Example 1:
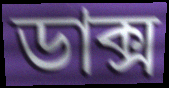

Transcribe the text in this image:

ডাক্স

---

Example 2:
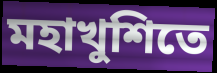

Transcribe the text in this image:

মহাখুশিতে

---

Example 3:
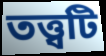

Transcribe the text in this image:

তত্ত্বটি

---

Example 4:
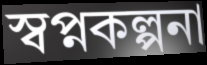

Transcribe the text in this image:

স্বপ্নকল্পনা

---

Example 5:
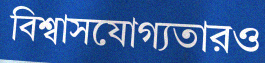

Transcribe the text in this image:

বিশ্বাসযোগ্যতারও